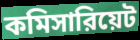
কমিসারিয়েট